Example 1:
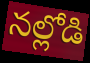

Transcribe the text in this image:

నల్లోడి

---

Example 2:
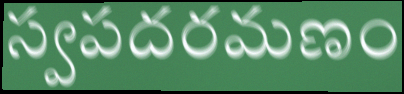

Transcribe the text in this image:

స్వపదరమణం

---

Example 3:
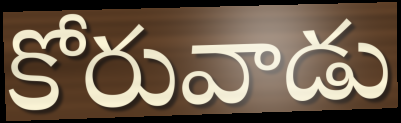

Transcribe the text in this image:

కోరువాడు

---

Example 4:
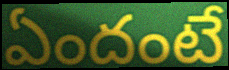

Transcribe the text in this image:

ఏందంటే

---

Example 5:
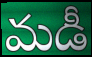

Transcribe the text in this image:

మడీ